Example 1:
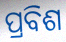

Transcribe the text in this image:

ପ୍ରବିଶ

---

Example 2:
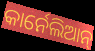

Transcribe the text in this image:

କାର୍ନେଲିଆନ୍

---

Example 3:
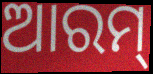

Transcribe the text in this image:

ଆରମ୍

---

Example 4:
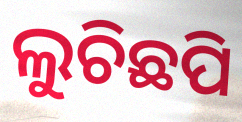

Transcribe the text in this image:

ଲୁଚିଛପି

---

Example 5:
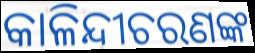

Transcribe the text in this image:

କାଳିନ୍ଦୀଚରଣଙ୍କ